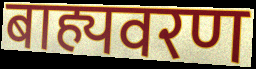
बाह्यवरण